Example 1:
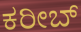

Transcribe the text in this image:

ಕರೀಬ್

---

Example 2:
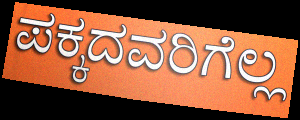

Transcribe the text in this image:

ಪಕ್ಕದವರಿಗೆಲ್ಲ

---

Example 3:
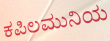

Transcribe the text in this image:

ಕಪಿಲಮುನಿಯ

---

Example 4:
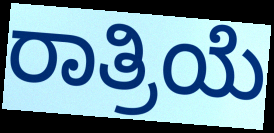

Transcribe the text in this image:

ರಾತ್ರಿಯೆ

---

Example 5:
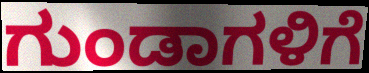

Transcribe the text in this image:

ಗುಂಡಾಗಳಿಗೆ